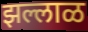
झल्लाळ